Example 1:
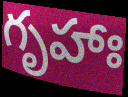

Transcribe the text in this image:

గృహాః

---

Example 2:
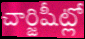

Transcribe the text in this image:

చార్జిషీట్లో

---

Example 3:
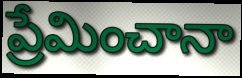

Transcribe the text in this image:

ప్రేమించానా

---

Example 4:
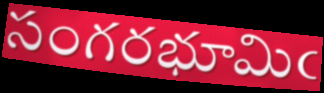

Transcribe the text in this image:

సంగరభూమిఁ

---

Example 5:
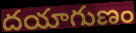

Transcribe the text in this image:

దయాగుణం